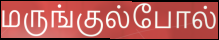
மருங்குல்போல்